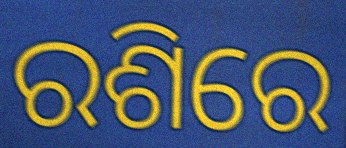
ରଶିରେ